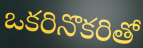
ఒకరినొకరితో